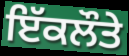
ਇੱਕਲੌਤੇ